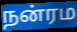
நன்ரம